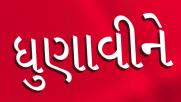
ધુણાવીને